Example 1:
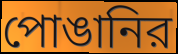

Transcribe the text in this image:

পোঙানির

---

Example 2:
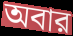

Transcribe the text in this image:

অবার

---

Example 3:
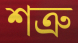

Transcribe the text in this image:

শত্রু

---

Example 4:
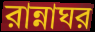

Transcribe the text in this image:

রান্নাঘর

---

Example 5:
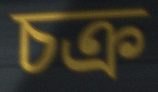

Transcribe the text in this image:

চক্র